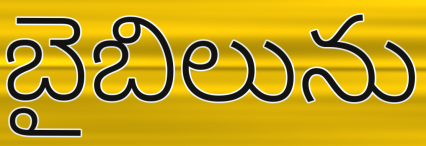
బైబిలును